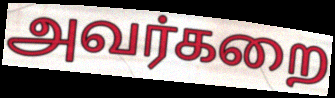
அவர்கறை